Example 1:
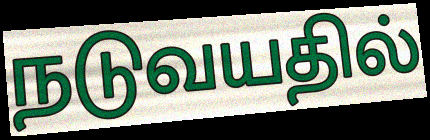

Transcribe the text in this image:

நடுவயதில்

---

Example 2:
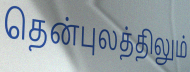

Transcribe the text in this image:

தென்புலத்திலும்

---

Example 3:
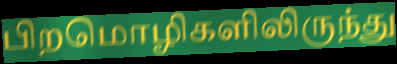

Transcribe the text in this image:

பிறமொழிகளிலிருந்து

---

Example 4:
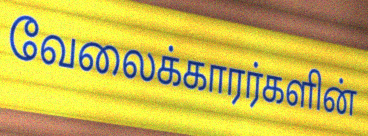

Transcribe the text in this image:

வேலைக்காரர்களின்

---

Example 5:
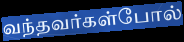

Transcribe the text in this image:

வந்தவர்கள்போல்